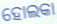
ହୋଲକା